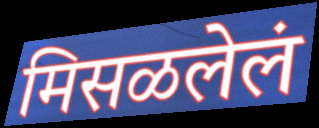
मिसळलेलं